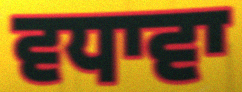
ਵਧਾਵਾ